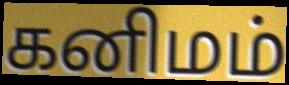
கனிமம்